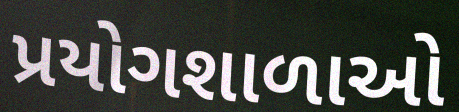
પ્રયોગશાળાઓ